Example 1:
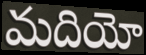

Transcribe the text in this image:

మదియో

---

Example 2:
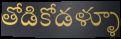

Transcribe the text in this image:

తోడికోడళ్ళూ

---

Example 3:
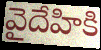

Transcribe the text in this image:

వైదేహికి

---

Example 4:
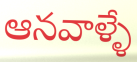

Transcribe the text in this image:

ఆనవాళ్ళే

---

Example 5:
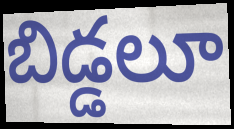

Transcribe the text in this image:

బిడ్డలూ